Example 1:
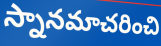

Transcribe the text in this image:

స్నానమాచరించి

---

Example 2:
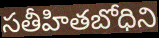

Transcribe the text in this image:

సతీహితబోధిని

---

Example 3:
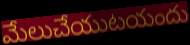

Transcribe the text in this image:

మేలుచేయుటయందు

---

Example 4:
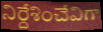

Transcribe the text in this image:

నిర్దేశించేవిగా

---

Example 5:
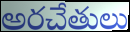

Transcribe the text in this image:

అరచేతులు